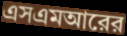
এসএমআরের